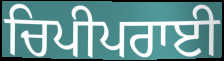
ਚਿਪੀਪਰਾਈ